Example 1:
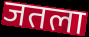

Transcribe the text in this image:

जतला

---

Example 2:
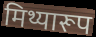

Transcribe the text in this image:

मिथ्यारूप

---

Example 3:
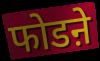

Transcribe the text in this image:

फोडऩे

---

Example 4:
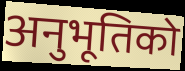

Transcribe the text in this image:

अनुभूतिको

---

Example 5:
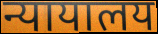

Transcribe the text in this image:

न्‍यायालय